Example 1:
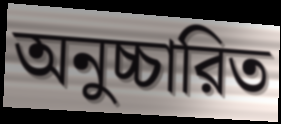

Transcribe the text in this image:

অনুচ্চারিত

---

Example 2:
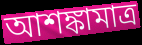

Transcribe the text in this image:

আশঙ্কামাত্র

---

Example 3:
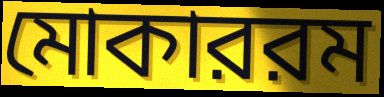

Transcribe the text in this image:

মোকাররম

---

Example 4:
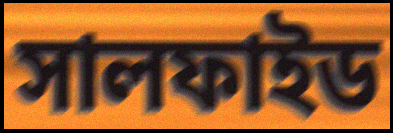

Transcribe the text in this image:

সালফাইড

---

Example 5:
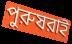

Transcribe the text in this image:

পুরুষরাই